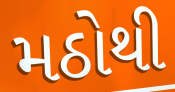
મઠોથી